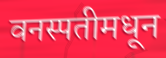
वनस्पतीमधून